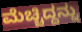
ಮೆಚ್ಚಿದ್ದನ್ನು